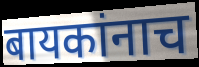
बायकांनाच